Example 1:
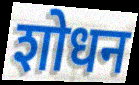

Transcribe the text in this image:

शोधन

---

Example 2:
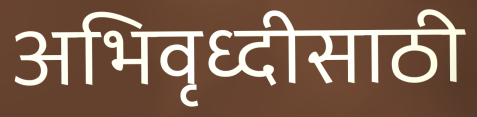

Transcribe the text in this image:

अभिवृध्दीसाठी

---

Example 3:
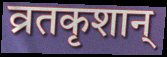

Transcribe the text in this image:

व्रतकृशान्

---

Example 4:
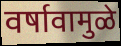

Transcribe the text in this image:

वर्षावामुळे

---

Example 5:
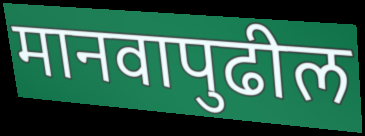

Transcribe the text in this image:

मानवापुढील